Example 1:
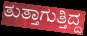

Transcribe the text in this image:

ತುತ್ತಾಗುತ್ತಿದ್ದ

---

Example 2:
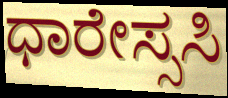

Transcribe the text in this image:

ಧಾರೇಸ್ಸಸಿ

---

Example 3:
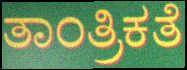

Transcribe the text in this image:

ತಾಂತ್ರಿಕತೆ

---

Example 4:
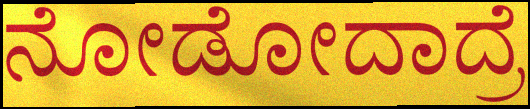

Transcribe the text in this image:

ನೋಡೋದಾದ್ರೆ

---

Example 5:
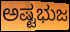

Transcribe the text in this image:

ಅಷ್ಟಭುಜ